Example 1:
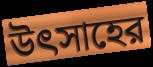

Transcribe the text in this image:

উৎসাহের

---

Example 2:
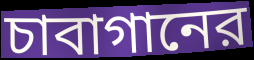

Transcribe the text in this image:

চাবাগানের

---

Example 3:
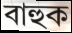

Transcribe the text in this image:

বাহুক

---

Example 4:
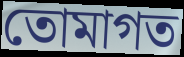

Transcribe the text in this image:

তোমাগত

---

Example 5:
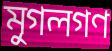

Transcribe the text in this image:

মুগলগণ